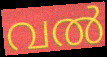
വൽ